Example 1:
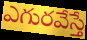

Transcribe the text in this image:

ఎగురవేస్తే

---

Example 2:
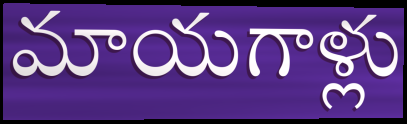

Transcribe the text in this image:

మాయగాళ్లు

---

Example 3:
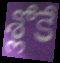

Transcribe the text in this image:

శ్లోకే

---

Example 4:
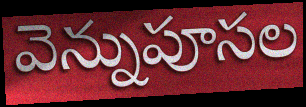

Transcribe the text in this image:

వెన్నుపూసల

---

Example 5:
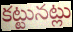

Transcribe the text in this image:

కట్టునట్లు